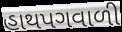
હાથપગવાળી